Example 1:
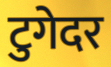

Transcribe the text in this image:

टुगेदर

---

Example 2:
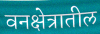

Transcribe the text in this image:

वनक्षेत्रातील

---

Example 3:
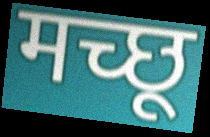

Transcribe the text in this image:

मच्छू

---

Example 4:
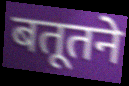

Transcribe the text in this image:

बतूतने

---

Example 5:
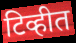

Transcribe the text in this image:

टिव्हीत